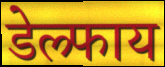
डेल्फाय